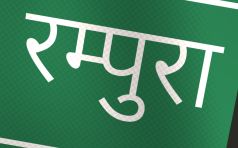
रम्पुरा